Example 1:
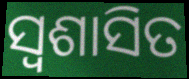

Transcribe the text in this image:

ସ୍ୱଶାସିତ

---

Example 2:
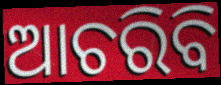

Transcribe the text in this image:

ଆଚରିବି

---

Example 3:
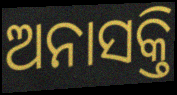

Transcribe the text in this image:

ଅନାସକ୍ତି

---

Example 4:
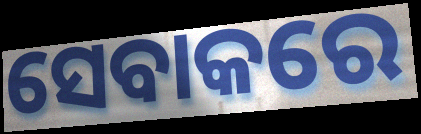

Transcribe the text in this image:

ସେବାକରେ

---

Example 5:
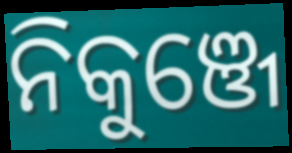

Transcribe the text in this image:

ନିକୁଞ୍ଜେ